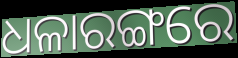
ଧଳାରଙ୍ଗରେ